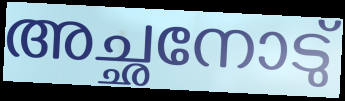
അച്ഛനോടു്